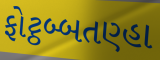
ફોટ્ઠબ્બતણ્હા